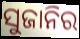
ସୁଜାନିର